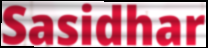
Sasidhar